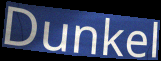
Dunkel